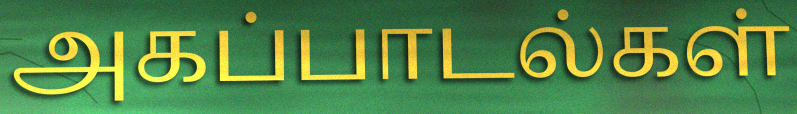
அகப்பாடல்கள்